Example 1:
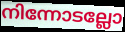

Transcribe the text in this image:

നിന്നോടല്ലോ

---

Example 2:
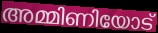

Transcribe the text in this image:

അമ്മിണിയോട്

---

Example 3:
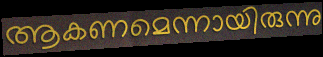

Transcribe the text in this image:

ആകണമെന്നായിരുന്നു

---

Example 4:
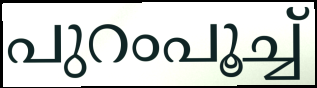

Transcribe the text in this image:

പുറംപൂച്ച്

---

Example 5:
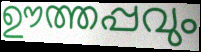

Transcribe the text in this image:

ഊത്തപ്പവും